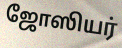
ஜோஸியர்